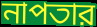
নাপতার